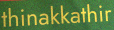
thinakkathir